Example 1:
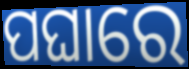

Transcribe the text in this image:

ପଘାରେ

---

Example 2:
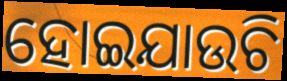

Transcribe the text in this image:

ହୋଇଯାଉଚି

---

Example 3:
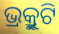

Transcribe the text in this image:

ଭ୍ର୍ରୁକୁଟି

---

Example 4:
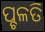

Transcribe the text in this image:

ପ୍ଚଳତି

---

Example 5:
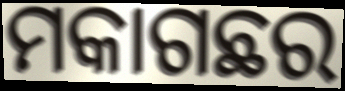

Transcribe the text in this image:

ମକାଗଛର